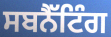
ਸਬਨੈੱਟਿੰਗ